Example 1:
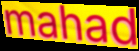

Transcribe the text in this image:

mahad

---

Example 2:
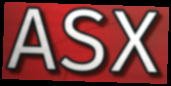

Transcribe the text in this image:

ASX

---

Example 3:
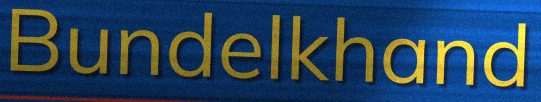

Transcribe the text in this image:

Bundelkhand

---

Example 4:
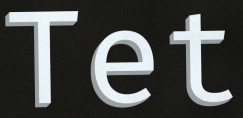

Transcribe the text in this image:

Tet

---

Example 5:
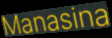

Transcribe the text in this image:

Manasina